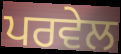
ਪਰਵੇਲ